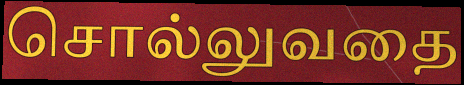
சொல்லுவதை